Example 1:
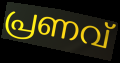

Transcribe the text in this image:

പ്രണവ്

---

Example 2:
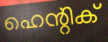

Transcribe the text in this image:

ഹെന്റിക്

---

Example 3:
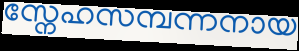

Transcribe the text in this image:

സ്നേഹസമ്പന്നനായ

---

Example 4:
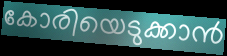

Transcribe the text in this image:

കോരിയെടുക്കാൻ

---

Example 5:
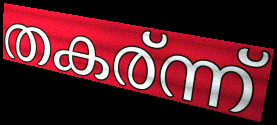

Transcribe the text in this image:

തകര്ന്ന്